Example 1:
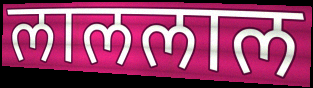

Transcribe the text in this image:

लाललाल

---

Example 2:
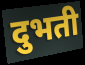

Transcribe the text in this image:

दुभती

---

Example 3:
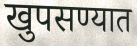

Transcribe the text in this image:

खुपसण्यात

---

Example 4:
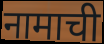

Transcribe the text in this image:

नामाची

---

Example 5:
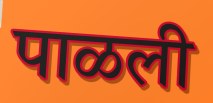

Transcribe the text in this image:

पाळली